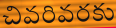
చివరివరకు